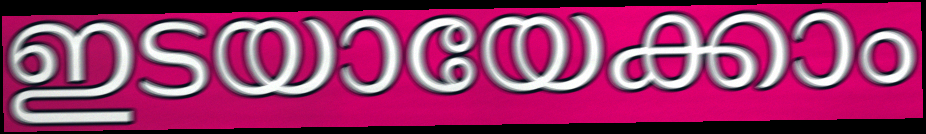
ഇടയായേക്കാം